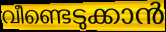
വീണ്ടെടുക്കാൻ